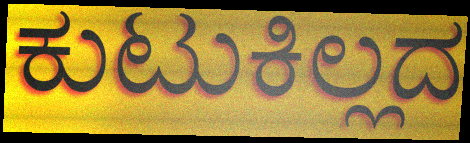
ಕುಟುಕಿಲ್ಲದ